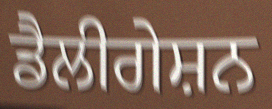
ਡੈਲੀਗੇਸ਼ਨ